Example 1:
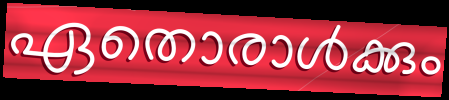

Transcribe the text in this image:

ഏതൊരാൾക്കും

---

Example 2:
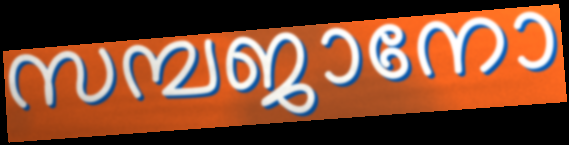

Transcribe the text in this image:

സമ്പജാനോ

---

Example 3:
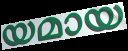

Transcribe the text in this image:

യമായ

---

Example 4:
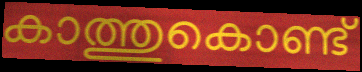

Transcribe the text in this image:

കാത്തുകൊണ്ട്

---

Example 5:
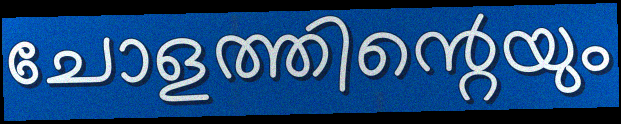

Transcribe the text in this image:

ചോളത്തിന്റെയും